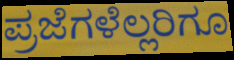
ಪ್ರಜೆಗಳೆಲ್ಲರಿಗೂ